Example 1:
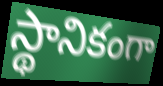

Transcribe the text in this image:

స్థానికంగా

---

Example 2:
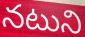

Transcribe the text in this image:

నటుని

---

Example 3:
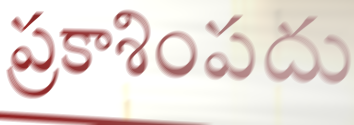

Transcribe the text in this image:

ప్రకాశింపదు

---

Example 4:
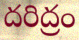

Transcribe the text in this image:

దరిద్రం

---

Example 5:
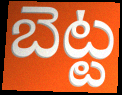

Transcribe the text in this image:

బెట్ట